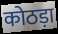
कोठड़ा